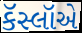
કૅસ્લૉએ